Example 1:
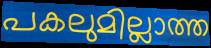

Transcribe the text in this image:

പകലുമില്ലാത്ത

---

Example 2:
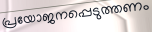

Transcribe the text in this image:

പ്രയോജനപ്പെടുത്തണം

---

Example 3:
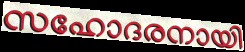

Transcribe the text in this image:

സഹോദരനായി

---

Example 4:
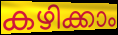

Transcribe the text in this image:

കഴിക്കാം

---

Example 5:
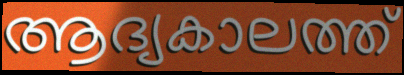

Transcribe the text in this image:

ആദ്യകാലത്ത്